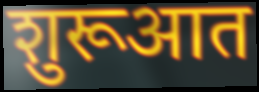
शुरूआत